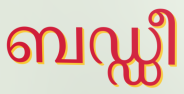
ബഡ്ഡീ